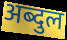
अब्दुल